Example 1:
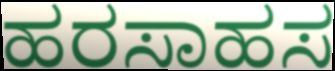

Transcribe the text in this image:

ಹರಸಾಹಸ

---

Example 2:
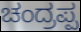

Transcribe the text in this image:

ಚಂದ್ರಪ್ಪ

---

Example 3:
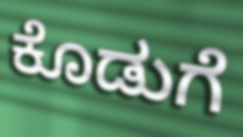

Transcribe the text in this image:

ಕೊಡುಗೆ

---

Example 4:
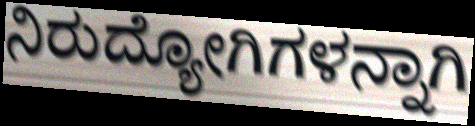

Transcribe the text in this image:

ನಿರುದ್ಯೋಗಿಗಳನ್ನಾಗಿ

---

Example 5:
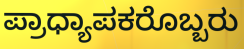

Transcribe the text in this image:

ಪ್ರಾಧ್ಯಾಪಕರೊಬ್ಬರು